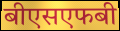
बीएसएफबी